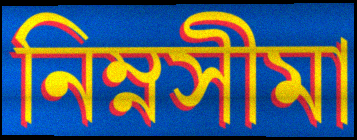
নিম্নসীমা